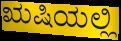
ಋಷಿಯಲ್ಲಿ